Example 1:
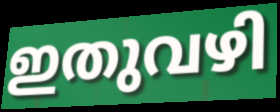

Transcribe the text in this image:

ഇതുവഴി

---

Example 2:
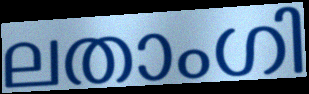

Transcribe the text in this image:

ലതാംഗി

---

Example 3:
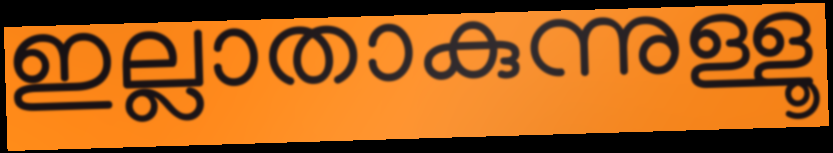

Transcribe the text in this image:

ഇല്ലാതാകുന്നുള്ളൂ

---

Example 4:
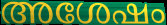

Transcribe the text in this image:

അശേഷം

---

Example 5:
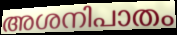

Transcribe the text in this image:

അശനിപാതം